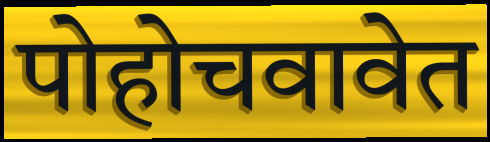
पोहोचवावेत